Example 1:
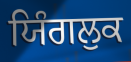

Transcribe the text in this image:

ਯਿੰਗਲੁਕ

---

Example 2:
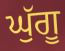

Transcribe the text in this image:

ਘੁੱਗੂ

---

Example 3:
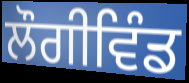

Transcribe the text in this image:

ਲੌਗੀਵਿੰਡ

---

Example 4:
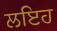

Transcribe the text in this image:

ਲਇਹ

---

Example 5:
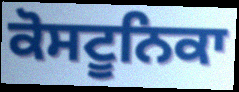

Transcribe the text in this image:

ਕੋਸਟੂਨਿਕਾ